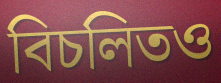
বিচলিতও